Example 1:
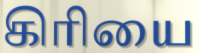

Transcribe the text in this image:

கிரியை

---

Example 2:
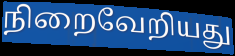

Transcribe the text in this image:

நிறைவேறியது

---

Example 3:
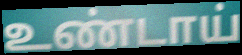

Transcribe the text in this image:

உண்டாய்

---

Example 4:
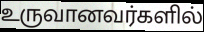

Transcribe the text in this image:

உருவானவர்களில்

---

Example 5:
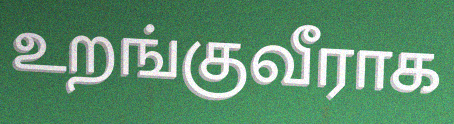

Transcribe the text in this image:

உறங்குவீராக